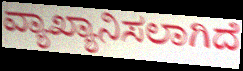
ವ್ಯಾಖ್ಯಾನಿಸಲಾಗಿದೆ